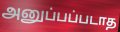
அனுப்பப்படாத